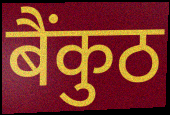
बैंकुठ